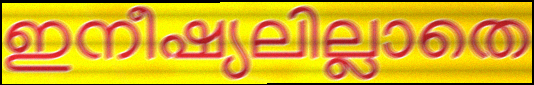
ഇനീഷ്യലില്ലാതെ